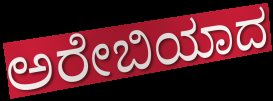
ಅರೇಬಿಯಾದ